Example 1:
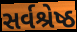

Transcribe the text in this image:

સર્વશ્રેષ્ઠ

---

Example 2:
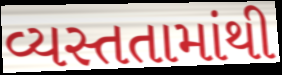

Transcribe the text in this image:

વ્યસ્તતામાંથી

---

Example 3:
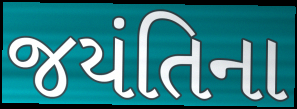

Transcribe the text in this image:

જયંતિના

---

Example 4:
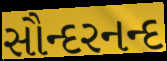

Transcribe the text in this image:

સૌન્દરનન્દ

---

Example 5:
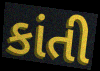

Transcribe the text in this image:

કાંતી